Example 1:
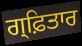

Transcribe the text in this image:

ਗ੍ਫ਼ਿਤਾਰ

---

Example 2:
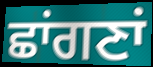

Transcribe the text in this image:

ਛਾਂਗਣਾਂ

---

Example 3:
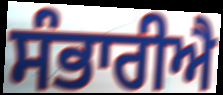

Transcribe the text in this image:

ਸੰਭਾਰੀਐ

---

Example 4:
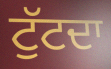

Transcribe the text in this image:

ਟੁੱਟਦਾ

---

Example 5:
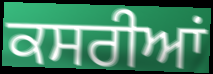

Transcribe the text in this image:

ਕਸਰੀਆਂ